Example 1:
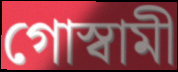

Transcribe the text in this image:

গোস্বামী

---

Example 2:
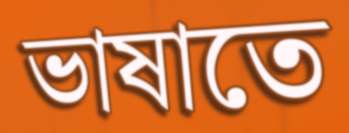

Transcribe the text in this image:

ভাষাতে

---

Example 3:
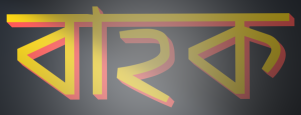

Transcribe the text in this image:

বাহক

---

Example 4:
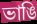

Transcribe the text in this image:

ভাঙি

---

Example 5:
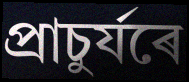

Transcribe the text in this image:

প্ৰাচুৰ্যৰে